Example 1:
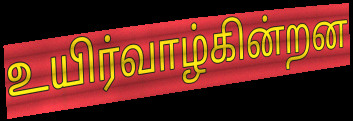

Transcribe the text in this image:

உயிர்வாழ்கின்றன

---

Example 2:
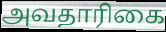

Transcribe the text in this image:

அவதாரிகை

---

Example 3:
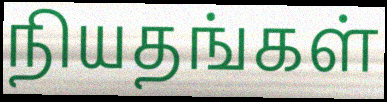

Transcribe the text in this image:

நியதங்கள்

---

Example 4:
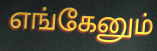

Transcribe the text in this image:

எங்கேனும்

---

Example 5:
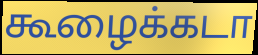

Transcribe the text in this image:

கூழைக்கடா